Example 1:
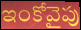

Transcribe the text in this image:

ఇంకోవైపు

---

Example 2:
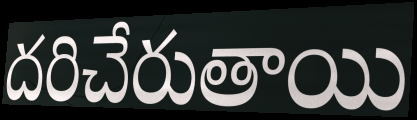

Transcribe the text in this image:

దరిచేరుతాయి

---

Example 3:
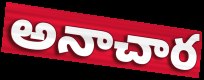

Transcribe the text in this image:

అనాచార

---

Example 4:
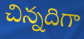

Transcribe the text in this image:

చిన్నదిగా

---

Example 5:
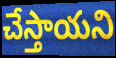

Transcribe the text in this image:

చేస్తాయని